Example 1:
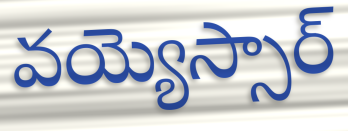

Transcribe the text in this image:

వయ్యెస్సార్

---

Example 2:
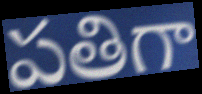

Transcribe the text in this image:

పతిగా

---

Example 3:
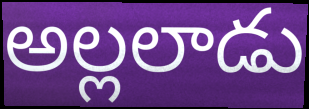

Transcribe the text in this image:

అల్లలాడు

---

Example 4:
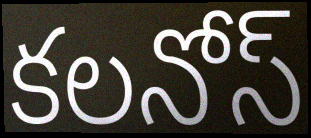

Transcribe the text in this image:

కలనోస్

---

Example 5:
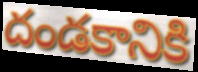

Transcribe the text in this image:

దండకానికి